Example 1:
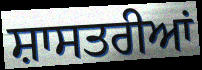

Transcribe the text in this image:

ਸ਼ਾਸਤਰੀਆਂ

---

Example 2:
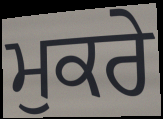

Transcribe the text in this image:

ਮੁਕਰੇ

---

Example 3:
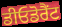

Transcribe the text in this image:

ਡੀਓਡੋਰੈਂਟ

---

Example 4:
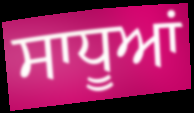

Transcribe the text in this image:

ਸਾਧੂਆਂ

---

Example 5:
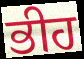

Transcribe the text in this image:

ਭੀਹ